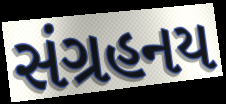
સંગ્રહનય